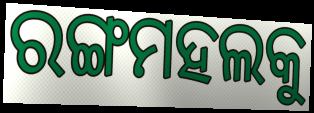
ରଙ୍ଗମହଲକୁ